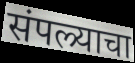
संपल्याचा